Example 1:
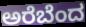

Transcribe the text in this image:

ಅರೆಬೆಂದ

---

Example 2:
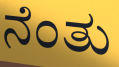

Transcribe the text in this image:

ನೆಂತು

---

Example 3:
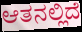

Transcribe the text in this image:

ಆತನಲ್ಲಿದೆ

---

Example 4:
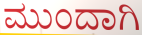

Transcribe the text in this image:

ಮುಂದಾಗಿ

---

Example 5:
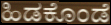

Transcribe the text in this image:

ಹಿಡಕೊಂಡೆ